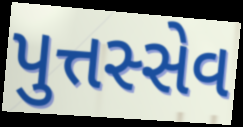
પુત્તસ્સેવ